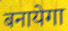
बनायेगा